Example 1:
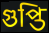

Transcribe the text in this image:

গুপ্তি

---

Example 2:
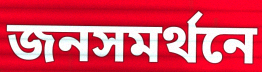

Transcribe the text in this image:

জনসমর্থনে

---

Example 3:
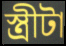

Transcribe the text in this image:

স্ত্রীটা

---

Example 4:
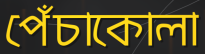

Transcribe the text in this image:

পেঁচাকোলা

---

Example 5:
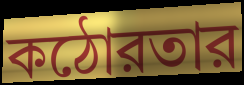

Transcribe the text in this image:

কঠোরতার